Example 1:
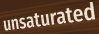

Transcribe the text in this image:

unsaturated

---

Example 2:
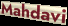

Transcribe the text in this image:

Mahdavi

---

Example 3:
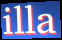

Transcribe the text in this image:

illa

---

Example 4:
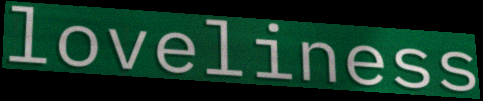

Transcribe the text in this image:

loveliness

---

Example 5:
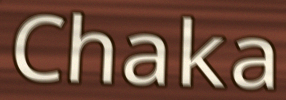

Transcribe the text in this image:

Chaka